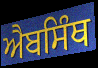
ਐਬਸਿੰਥ